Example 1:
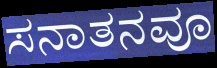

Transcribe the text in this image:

ಸನಾತನವೂ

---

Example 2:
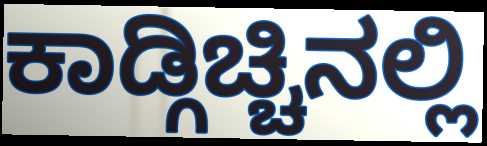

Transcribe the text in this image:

ಕಾಡ್ಗಿಚ್ಚಿನಲ್ಲಿ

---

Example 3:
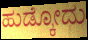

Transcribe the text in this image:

ಹುಡ್ಕೋದು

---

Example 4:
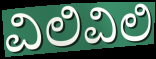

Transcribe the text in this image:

ವಿಲಿವಿಲಿ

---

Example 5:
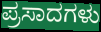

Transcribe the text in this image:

ಪ್ರಸಾದಗಳು